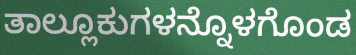
ತಾಲ್ಲೂಕುಗಳನ್ನೊಳಗೊಂಡ